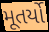
મૂતર્યો